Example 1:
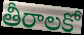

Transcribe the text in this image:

తీరాలకో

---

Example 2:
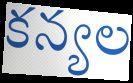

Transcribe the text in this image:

కన్యల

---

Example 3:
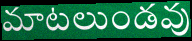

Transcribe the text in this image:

మాటలుండవు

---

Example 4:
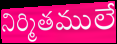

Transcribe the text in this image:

నిర్మితములే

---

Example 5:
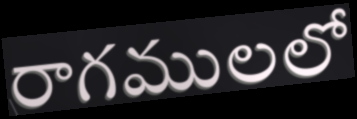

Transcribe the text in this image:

రాగములలో